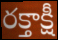
రక్తాక్షీ